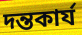
দন্তকার্য